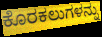
ಕೊರಕಲುಗಳನ್ನು